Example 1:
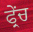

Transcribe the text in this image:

ਫ੍ਰੇਂਚ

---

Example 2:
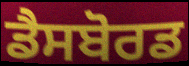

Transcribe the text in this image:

ਡੈਸਬੋਰਡ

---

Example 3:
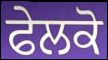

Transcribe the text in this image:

ਫੇਲਕੋ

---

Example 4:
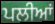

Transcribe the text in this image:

ਪਲੀਆਂ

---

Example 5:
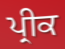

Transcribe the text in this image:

ਪ੍ਰੀਕ